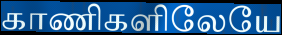
காணிகளிலேயே